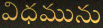
విధమును